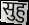
सुहु